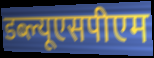
डब्ल्यूएसपीएम